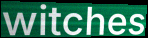
witches